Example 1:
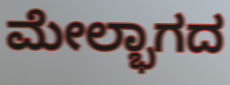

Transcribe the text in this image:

ಮೇಲ್ಭಾಗದ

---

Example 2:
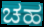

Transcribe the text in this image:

ಚಹ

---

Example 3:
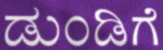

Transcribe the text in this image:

ಡುಂಡಿಗೆ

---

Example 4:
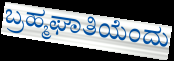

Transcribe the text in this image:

ಬ್ರಹ್ಮಘಾತಿಯೆಂದು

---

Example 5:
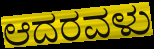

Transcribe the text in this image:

ಆದರವಳು